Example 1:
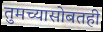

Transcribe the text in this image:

तुमच्यासोबतही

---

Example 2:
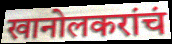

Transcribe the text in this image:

खानोलकरांचं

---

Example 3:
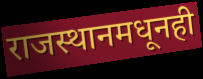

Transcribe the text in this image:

राजस्थानमधूनही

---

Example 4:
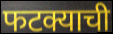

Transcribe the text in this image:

फटक्याची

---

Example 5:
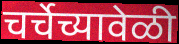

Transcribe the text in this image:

चर्चेच्यावेळी